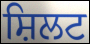
ਸ਼ਿਲਟ